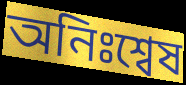
অনিঃশ্বেষ